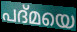
പദ്മയെ